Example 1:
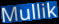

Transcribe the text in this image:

Mullik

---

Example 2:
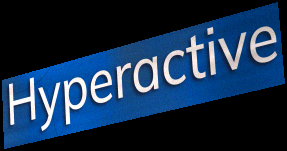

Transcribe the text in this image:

Hyperactive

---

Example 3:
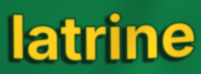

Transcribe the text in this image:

latrine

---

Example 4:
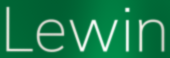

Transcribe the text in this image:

Lewin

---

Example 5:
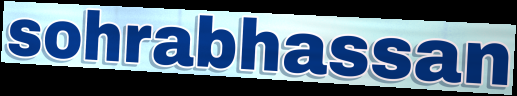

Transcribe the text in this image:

sohrabhassan